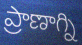
ప్రాణాగ్ని